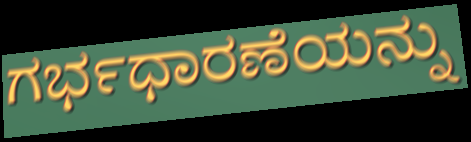
ಗರ್ಭಧಾರಣೆಯನ್ನು